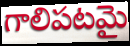
గాలిపటమై